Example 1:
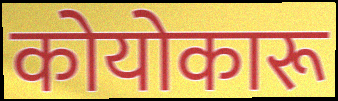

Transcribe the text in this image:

कोयोकारू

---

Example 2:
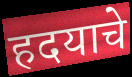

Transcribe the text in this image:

हदयाचे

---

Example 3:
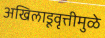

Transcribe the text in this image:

अखिलाडूवृत्तीमुळे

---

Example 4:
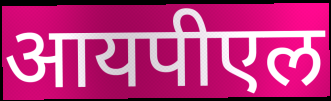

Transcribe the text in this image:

आयपीएल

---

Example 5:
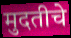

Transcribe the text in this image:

मुदतीचे